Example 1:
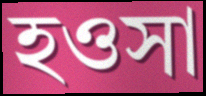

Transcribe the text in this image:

হওসা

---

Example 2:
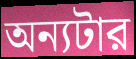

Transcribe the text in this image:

অন্যটার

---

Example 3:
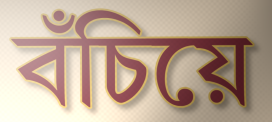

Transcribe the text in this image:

বঁচিয়ে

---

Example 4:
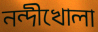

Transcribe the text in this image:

নন্দীখোলা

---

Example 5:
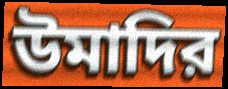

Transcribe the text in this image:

উমাদির